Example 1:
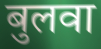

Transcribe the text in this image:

बुलवा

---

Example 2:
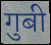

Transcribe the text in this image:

गुबी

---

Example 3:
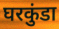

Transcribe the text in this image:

घरकुंडा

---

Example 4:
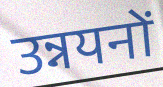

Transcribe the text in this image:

उन्नयनों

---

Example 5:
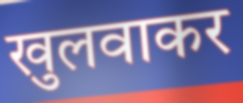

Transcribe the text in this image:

खुलवाकर